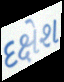
દક્ષેશ